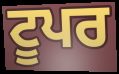
ਟੂਪਰ